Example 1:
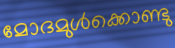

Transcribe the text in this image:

മോദമുൾക്കൊണ്ടു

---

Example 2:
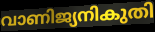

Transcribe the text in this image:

വാണിജ്യനികുതി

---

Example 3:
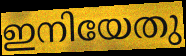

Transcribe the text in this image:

ഇനിയേതു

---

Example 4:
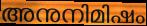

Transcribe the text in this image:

അനുനിമിഷം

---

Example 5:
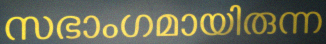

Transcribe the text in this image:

സഭാംഗമായിരുന്ന